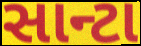
સાન્ટા